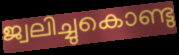
ജ്വലിച്ചുകൊണ്ടു